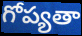
గోప్యతా